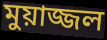
মুয়াজ্জল